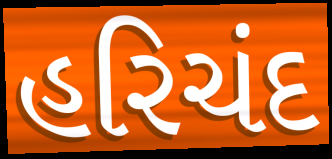
હરિચંદ